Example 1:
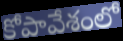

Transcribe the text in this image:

కోపావేశంలో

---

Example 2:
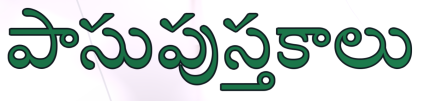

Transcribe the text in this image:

పాసుపుస్తకాలు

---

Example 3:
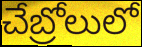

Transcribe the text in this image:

చేబ్రోలులో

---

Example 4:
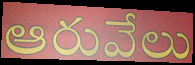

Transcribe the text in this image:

ఆరువేలు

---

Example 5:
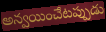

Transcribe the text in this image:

అన్వయించేటప్పుడు